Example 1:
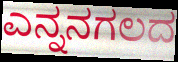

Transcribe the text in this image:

ಎನ್ನನಗಲದ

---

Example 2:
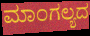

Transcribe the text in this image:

ಮಾಂಗಲ್ಯದ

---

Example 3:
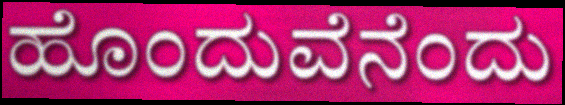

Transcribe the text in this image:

ಹೊಂದುವೆನೆಂದು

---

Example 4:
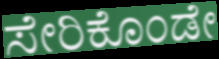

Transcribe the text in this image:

ಸೇರಿಕೊಂಡೇ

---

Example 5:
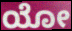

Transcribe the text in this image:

ಯೋ